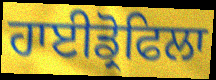
ਹਾਈਡ੍ਰੋਫਿਲਾ